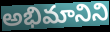
అభిమానిని